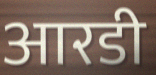
आरडी